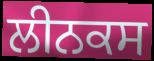
ਲੀਨਕਸ